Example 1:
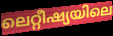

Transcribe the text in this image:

ലെറ്റീഷ്യയിലെ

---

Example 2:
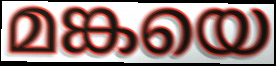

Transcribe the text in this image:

മങ്കയെ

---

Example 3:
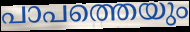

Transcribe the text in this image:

പാപത്തെയും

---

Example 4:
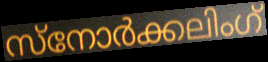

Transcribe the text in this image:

സ്നോർക്കലിംഗ്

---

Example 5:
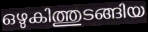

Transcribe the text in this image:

ഒഴുകിത്തുടങ്ങിയ